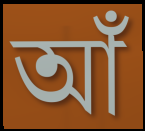
আঁ